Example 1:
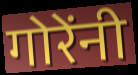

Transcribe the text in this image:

गोरेंनी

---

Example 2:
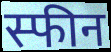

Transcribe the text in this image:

स्फीन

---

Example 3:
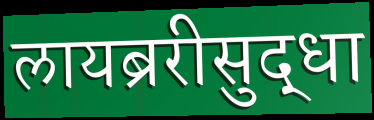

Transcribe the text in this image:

लायब्ररीसुद्धा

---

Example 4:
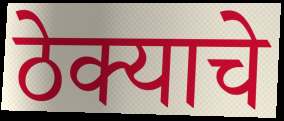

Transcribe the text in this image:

ठेक्याचे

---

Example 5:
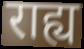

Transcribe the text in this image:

राह्य